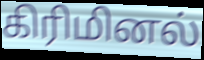
கிரிமினல்